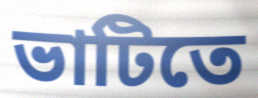
ভাটিতে